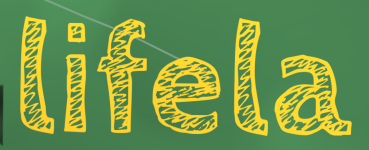
lifela